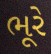
ભૂરે